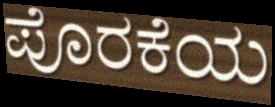
ಪೊರಕೆಯ